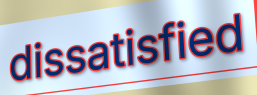
dissatisfied